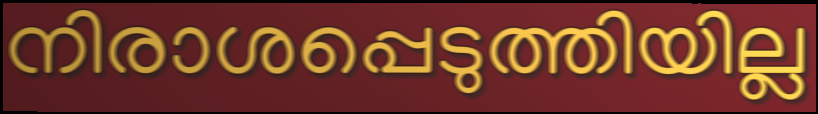
നിരാശപ്പെടുത്തിയില്ല